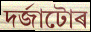
দৰ্জাটোৰ